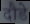
दौडे